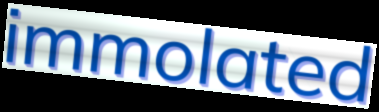
immolated